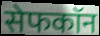
सेफकॉन